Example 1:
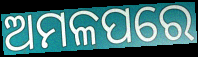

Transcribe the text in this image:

ଅମଳପରେ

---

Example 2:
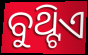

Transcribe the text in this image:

ବୁଥ୍ଟିଏ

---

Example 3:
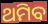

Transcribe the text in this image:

ଥମିବ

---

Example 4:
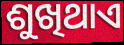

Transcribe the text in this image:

ଶୁଖିଥାଏ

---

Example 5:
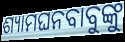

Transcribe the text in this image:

ଶ୍ୟାମଘନବାବୁଙ୍କୁ